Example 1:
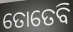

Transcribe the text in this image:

ତୋତେବି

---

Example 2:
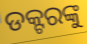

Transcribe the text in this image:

ଡକ୍ଟରଙ୍କୁ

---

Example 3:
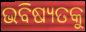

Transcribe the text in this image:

ଭବିଷ୍ୟତକୁ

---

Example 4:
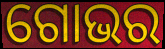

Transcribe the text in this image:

ଗୋଭର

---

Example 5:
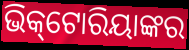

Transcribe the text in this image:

ଭିକ୍‌ଟୋରିୟାଙ୍କର